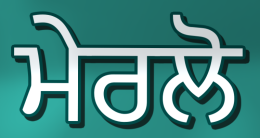
ਮੇਰਲੋ